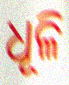
ଧୂଳି